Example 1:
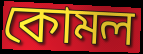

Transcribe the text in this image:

কোমল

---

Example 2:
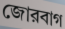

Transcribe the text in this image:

জোরবাগ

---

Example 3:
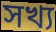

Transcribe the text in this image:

সখ্য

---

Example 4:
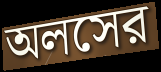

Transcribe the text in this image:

অলসের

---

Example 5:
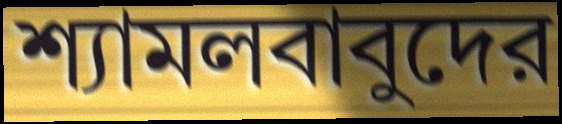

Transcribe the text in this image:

শ্যামলবাবুদের